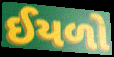
ઈયળો